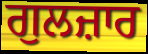
ਗੁਲਜ਼ਾਰ